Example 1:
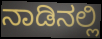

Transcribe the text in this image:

ನಾಡಿನಲ್ಲಿ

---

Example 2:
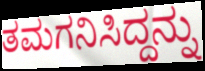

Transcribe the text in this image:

ತಮಗನಿಸಿದ್ದನ್ನು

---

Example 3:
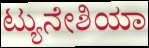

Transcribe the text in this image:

ಟ್ಯುನೇಶಿಯಾ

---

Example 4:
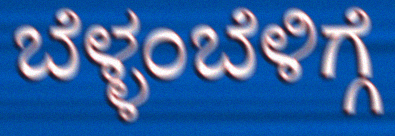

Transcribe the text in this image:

ಬೆಳ್ಳಂಬೆಳಿಗ್ಗೆ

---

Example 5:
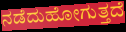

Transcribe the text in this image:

ನಡೆದುಹೋಗುತ್ತದೆ